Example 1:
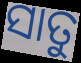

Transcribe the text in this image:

ସାତୁ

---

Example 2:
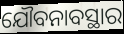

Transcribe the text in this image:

ଯୌବନାବସ୍ଥାର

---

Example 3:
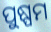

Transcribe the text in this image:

ପୁଷ୍ପମ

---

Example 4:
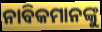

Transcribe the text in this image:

ନାବିକମାନଙ୍କୁ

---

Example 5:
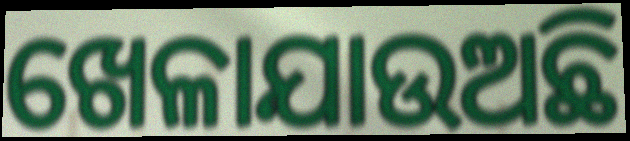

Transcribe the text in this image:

ଖେଳାଯାଉଅଛି